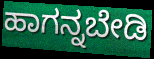
ಹಾಗನ್ನಬೇಡಿ